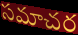
సమాచర